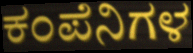
ಕಂಪೆನಿಗಳ